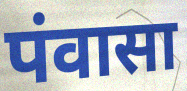
पंवासा